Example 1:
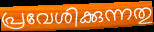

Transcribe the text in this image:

പ്രവേശിക്കുന്നതു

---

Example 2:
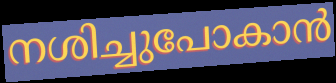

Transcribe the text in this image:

നശിച്ചുപോകാൻ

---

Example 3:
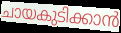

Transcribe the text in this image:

ചായകുടിക്കാൻ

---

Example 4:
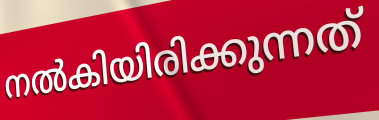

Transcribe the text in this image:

നൽകിയിരിക്കുന്നത്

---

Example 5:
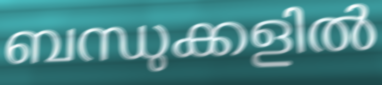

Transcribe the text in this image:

ബന്ധുക്കളിൽ